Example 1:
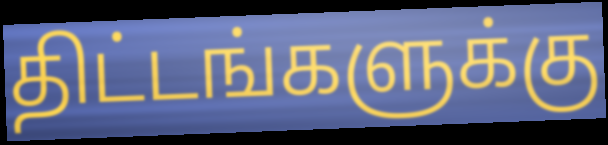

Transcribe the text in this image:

திட்டங்களுக்கு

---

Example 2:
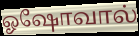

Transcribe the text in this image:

ஓஷோவால்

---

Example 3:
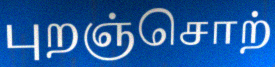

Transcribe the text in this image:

புறஞ்சொற்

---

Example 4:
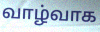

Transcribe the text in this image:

வாழ்வாக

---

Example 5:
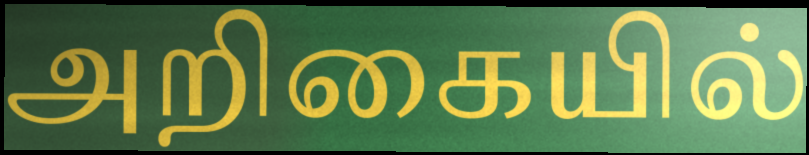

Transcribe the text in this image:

அறிகையில்